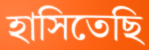
হাসিতেছি